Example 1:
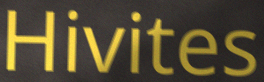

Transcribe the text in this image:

Hivites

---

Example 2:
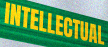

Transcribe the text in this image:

INTELLECTUAL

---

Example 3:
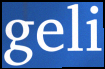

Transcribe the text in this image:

geli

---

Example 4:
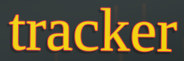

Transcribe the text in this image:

tracker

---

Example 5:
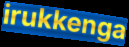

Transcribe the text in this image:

irukkenga